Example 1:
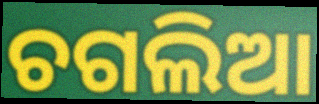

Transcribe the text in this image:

ଚଗଲିଆ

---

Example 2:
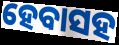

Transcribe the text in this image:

ହେବାସହ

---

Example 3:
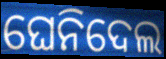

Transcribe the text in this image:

ଘେନିଦେଲ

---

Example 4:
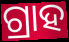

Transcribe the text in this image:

ଗ୍ରାହ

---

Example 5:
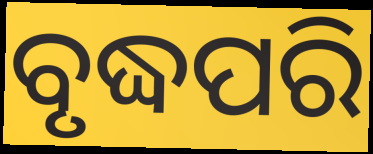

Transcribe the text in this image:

ବୃଦ୍ଧପରି